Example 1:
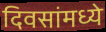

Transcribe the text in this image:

दिवसांमध्ये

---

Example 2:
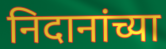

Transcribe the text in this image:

निदानांच्या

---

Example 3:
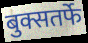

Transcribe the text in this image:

बुक्सतर्फे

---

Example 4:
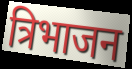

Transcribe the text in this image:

त्रिभाजन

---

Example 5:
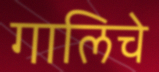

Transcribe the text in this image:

गालिचे